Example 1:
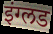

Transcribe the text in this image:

इंग्लड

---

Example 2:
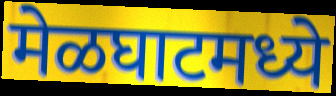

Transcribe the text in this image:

मेळघाटमध्ये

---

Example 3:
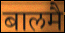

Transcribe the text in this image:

बालमै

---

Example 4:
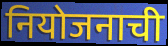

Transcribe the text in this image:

नियोजनाची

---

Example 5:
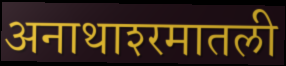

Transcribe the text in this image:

अनाथाश्रमातली